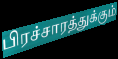
பிரச்சாரத்துக்கும்